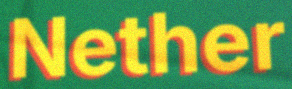
Nether